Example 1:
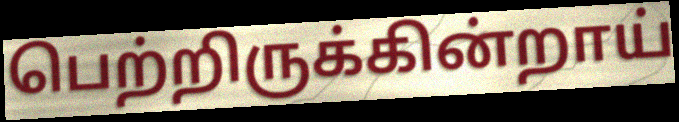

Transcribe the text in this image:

பெற்றிருக்கின்றாய்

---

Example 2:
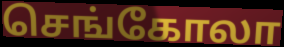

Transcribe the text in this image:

செங்கோலா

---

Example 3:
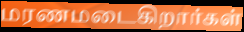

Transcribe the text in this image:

மரணமடைகிறார்கள்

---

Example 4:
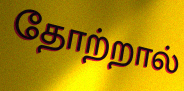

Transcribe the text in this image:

தோற்றால்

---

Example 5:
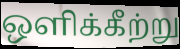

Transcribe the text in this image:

ஒளிக்கீற்று